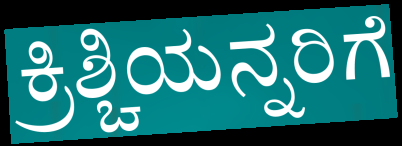
ಕ್ರಿಶ್ಚಿಯನ್ನರಿಗೆ